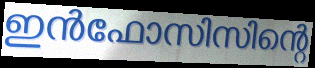
ഇൻഫോസിസിന്റെ